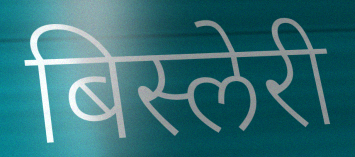
बिस्लेरी